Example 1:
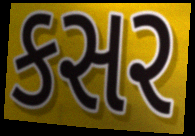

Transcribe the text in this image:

કસર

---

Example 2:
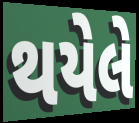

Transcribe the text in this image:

થયેલે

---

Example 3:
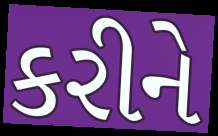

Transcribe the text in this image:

કરીને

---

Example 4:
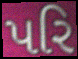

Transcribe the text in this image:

પરિ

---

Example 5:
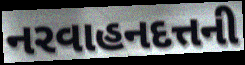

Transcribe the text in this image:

નરવાહનદત્તની